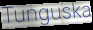
Tunguska